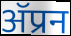
ॲप्रन